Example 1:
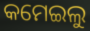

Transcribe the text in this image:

କମେଇଲୁ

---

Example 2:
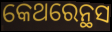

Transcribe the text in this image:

କେଥରେନ୍ଥସ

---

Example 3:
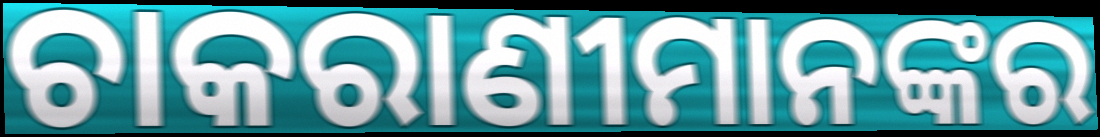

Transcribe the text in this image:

ଚାକରାଣୀମାନଙ୍କର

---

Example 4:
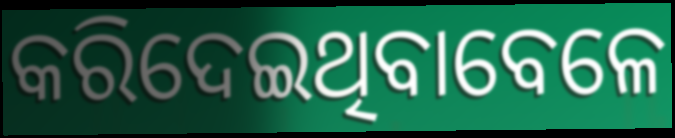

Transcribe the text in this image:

କରିଦେଇଥିବାବେଳେ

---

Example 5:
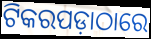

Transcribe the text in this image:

ଟିକରପଡ଼ାଠାରେ